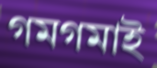
গমগমাই